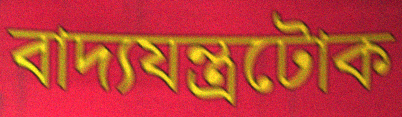
বাদ্যযন্ত্ৰটোক